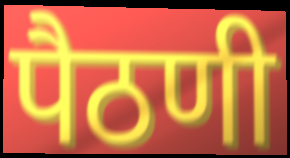
पैठणी